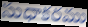
సుధాకరము